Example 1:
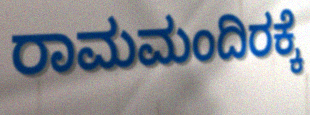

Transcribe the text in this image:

ರಾಮಮಂದಿರಕ್ಕೆ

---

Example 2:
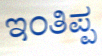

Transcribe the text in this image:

ಇಂತಿಪ್ಪ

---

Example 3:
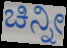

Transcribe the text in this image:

ಚಿನ್ನೀ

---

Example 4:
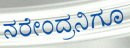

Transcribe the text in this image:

ನರೇಂದ್ರನಿಗೂ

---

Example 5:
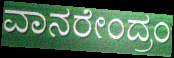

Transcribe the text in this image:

ವಾನರೇಂದ್ರಂ